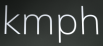
kmph